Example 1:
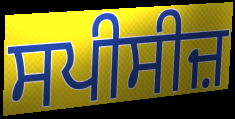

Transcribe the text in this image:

ਸਪੀਸੀਜ਼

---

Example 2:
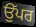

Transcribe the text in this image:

ਉੁੱਪਰ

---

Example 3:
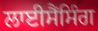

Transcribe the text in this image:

ਲਾਈਸੈਂਸਿੰਗ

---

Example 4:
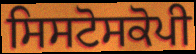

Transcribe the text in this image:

ਸਿਸਟੋਸਕੋਪੀ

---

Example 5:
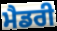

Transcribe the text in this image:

ਮੈਡਰੀ